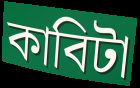
কাবিটা